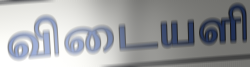
விடையளி